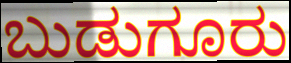
ಬುಡುಗೂರು